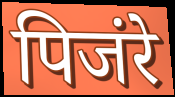
पिजंरे